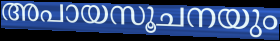
അപായസൂചനയും